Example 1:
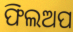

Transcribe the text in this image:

ଫିଲଅପ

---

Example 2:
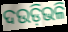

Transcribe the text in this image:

ଦଉଡ଼ିଭଳି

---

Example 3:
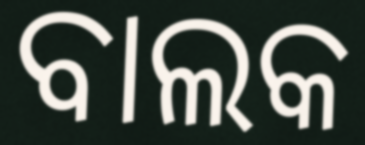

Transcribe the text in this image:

ବାଲକ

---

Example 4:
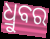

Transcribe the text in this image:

ଧ୍ରୁବର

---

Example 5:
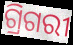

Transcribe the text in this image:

ଗ୍ରିଗରୀ